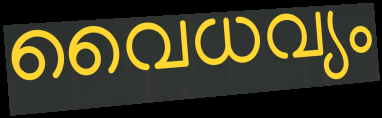
വൈധവ്യം